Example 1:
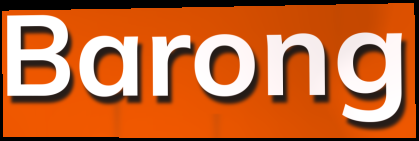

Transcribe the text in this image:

Barong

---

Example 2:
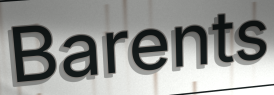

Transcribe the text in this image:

Barents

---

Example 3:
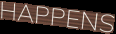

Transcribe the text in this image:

HAPPENS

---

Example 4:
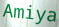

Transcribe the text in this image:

Amiya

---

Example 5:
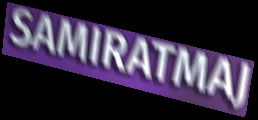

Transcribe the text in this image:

SAMIRATMAJ